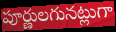
పూర్ణులగునట్లుగా